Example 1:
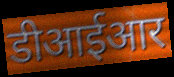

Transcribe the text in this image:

डीआईआर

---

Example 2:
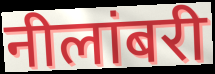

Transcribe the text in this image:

नीलांबरी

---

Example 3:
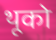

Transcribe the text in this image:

थूको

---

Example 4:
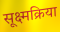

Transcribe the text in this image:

सूक्ष्मक्रिया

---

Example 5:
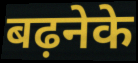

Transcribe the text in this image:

बढ़नेके